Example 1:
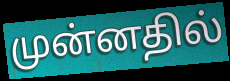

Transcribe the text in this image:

முன்னதில்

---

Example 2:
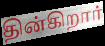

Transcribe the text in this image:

தின்கிறார்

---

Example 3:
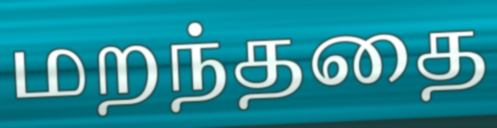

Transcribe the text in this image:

மறந்ததை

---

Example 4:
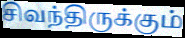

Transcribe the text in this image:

சிவந்திருக்கும்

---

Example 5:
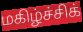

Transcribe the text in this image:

மகிழ்ச்சிக்